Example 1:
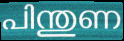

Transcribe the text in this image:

പിന്തുണ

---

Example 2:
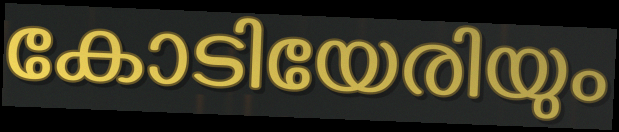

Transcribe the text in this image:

കോടിയേരിയും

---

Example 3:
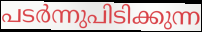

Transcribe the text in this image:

പടർന്നുപിടിക്കുന്ന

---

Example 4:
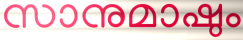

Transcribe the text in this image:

സാനുമാഷും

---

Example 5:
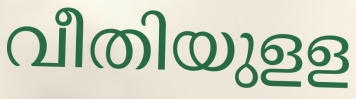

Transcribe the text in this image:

വീതിയുളള